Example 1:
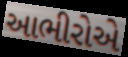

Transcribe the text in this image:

આભીરોએ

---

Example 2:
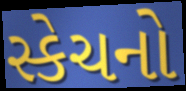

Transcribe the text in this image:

સ્કેચનો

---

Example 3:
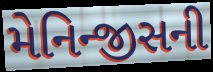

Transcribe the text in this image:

મેનિન્જીસની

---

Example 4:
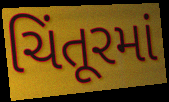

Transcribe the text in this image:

ચિંતૂરમાં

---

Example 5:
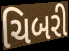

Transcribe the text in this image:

ચિબરી